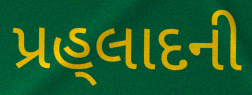
પ્રહ્‌લાદની